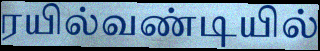
ரயில்வண்டியில்